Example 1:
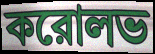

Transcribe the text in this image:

করোলভ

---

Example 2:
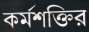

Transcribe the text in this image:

কর্মশক্তির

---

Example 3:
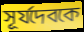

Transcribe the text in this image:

সূর্যদেবকে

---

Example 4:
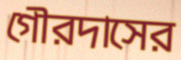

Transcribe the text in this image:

গৌরদাসের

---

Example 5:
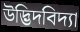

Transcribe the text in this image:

উদ্ভিদবিদ্যা